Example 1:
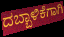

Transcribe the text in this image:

ದಬ್ಬಾಳಿಕೆಗಾಗಿ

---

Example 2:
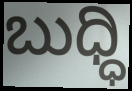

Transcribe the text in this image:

ಬುಧ್ಧಿ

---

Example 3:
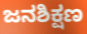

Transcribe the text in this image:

ಜನಶಿಕ್ಷಣ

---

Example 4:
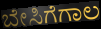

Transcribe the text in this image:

ಬೇಸಿಗೆಗಾಲ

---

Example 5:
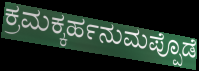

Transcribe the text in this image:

ಕ್ರಮಕ್ಕರ್ಹನುಮಪ್ಪೊಡೆ